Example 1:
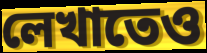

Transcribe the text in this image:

লেখাতেও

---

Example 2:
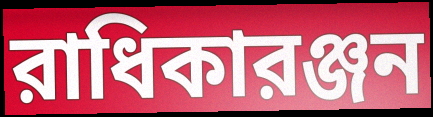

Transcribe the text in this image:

রাধিকারঞ্জন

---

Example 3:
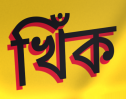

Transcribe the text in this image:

খিঁক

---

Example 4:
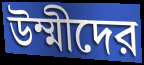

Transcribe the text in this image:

উম্মীদের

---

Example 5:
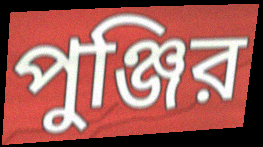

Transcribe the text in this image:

পুঞ্জির